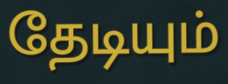
தேடியும்